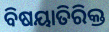
ବିଷୟାତିରିକ୍ତ